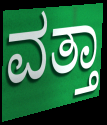
ವತ್ತಾ